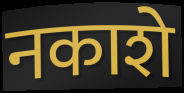
नकाशे